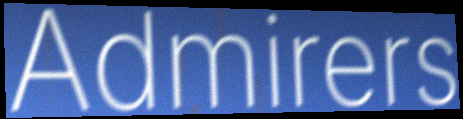
Admirers